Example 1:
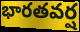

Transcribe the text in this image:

భారతవర్ష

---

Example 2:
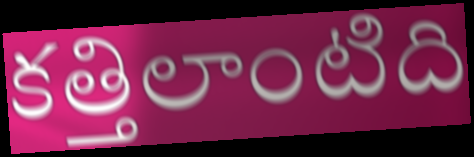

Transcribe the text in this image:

కత్తిలాంటిది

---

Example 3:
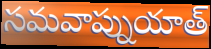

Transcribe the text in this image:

సమవాప్నుయాత్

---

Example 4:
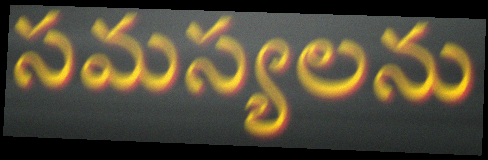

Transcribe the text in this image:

సమస్యలను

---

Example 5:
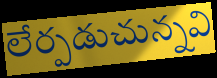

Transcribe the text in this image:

లేర్పడుచున్నవి